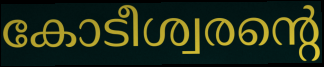
കോടീശ്വരന്റെ